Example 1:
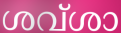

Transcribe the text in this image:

ശവ്ശാ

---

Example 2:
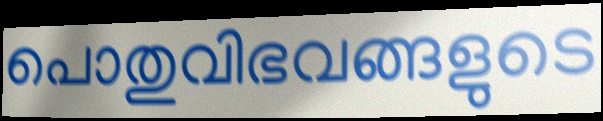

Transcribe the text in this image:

പൊതുവിഭവങ്ങളുടെ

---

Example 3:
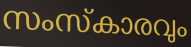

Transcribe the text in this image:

സംസ്‌കാരവും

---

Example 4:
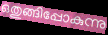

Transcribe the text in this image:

ഒതുങ്ങിപ്പോകുന്നു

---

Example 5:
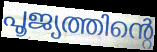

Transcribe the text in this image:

പൂജ്യത്തിന്റെ